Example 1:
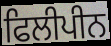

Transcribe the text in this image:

ਫਿਲੀਪੀਨ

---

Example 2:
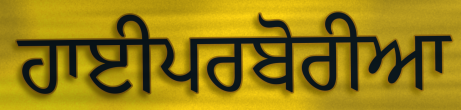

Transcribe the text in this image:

ਹਾਈਪਰਬੋਰੀਆ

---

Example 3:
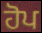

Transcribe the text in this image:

ਹੋਪ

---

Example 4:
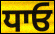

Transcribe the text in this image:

ਧਾਓ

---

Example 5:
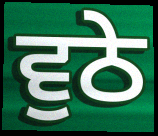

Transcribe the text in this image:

ਵੁਠੇ